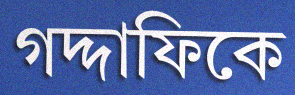
গদ্দাফিকে